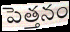
పెత్తనం